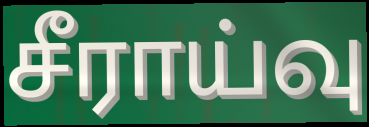
சீராய்வு